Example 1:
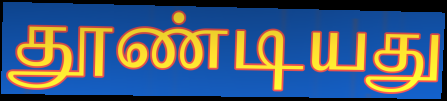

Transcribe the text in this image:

தூண்டியது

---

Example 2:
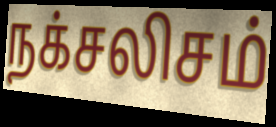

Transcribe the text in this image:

நக்சலிசம்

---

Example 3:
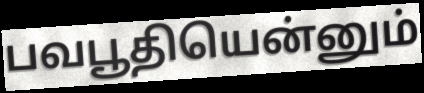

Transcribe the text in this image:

பவபூதியென்னும்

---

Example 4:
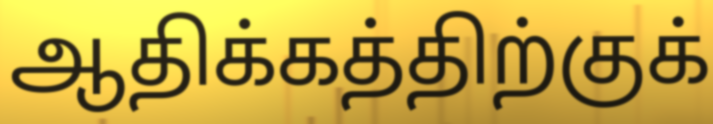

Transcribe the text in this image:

ஆதிக்கத்திற்குக்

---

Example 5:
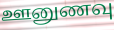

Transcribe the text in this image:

ஊனுணவு